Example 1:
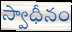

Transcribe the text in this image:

స్వాధీనం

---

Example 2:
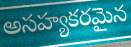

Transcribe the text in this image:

అసహ్యకరమైన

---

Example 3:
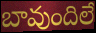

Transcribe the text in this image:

బావుందిలే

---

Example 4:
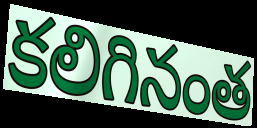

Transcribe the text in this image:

కలిగినంత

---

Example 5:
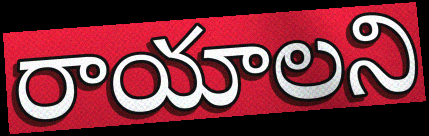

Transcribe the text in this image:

రాయాలని